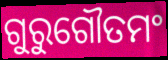
ଗୁରୁଗୌତମଂ